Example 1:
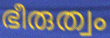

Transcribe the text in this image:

ഭീരുത്വം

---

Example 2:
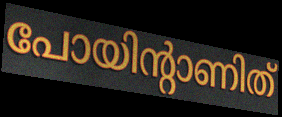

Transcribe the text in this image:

പോയിന്റാണിത്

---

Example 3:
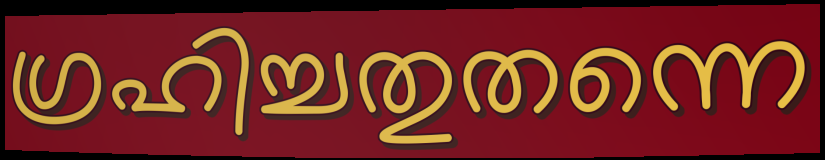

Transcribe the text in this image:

ഗ്രഹിച്ചതുതന്നെ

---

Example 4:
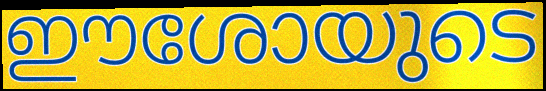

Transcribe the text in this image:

ഈശോയുടെ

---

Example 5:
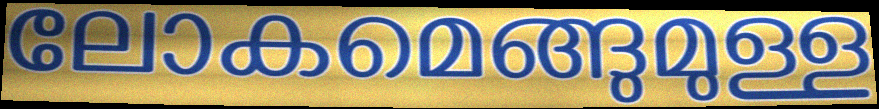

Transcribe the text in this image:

ലോകമെങ്ങുമുള്ള